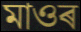
মাওৰ